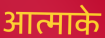
आत्माके